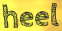
heel